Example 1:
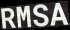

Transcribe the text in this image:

RMSA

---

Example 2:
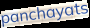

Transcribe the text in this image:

panchayats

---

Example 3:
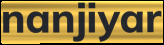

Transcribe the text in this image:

nanjiyar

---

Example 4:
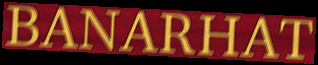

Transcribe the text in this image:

BANARHAT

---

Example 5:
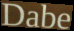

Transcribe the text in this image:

Dabe